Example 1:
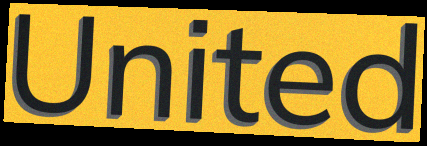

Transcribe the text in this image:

United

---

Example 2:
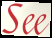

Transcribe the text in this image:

See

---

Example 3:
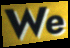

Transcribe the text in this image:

We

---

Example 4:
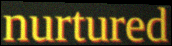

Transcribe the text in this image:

nurtured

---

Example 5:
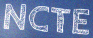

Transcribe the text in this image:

NCTE